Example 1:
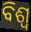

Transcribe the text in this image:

ବିଶ୍ୱ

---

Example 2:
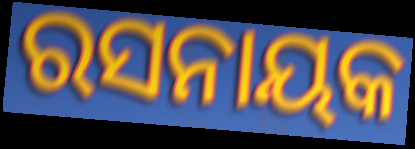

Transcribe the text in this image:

ରସନାୟକ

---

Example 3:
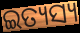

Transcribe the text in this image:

ଇତ୍ୟସ୍ୟ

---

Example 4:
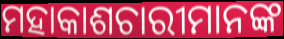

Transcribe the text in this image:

ମହାକାଶଚାରୀମାନଙ୍କ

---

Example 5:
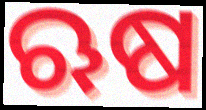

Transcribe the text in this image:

ଋଷ